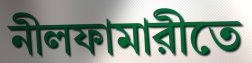
নীলফামারীতে